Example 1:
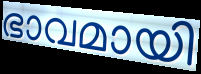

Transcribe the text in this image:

ഭാവമായി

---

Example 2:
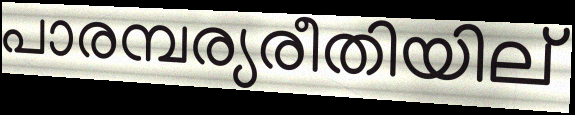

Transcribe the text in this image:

പാരമ്പര്യരീതിയില്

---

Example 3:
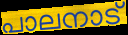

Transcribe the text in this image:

പാലനാട്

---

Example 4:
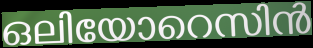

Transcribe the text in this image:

ഒലിയോറെസിൻ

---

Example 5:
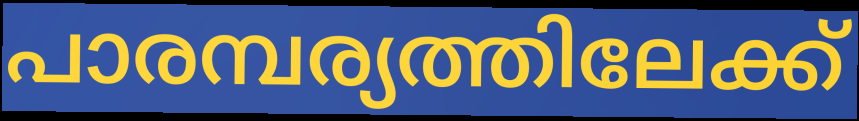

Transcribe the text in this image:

പാരമ്പര്യത്തിലേക്ക്